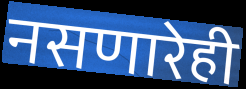
नसणारेही